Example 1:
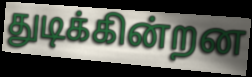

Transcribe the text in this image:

துடிக்கின்றன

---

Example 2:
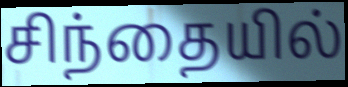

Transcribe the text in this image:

சிந்தையில்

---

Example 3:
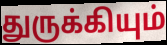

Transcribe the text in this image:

துருக்கியும்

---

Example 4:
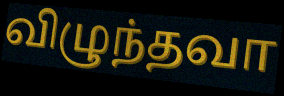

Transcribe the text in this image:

விழுந்தவா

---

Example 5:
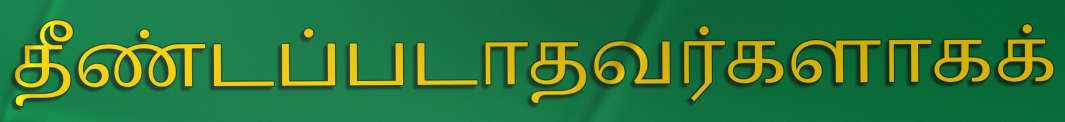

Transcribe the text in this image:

தீண்டப்படாதவர்களாகக்